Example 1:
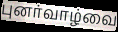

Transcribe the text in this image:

புனர்வாழ்வை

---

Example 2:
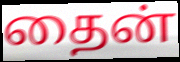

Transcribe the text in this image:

தைன்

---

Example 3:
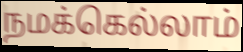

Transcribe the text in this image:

நமக்கெல்லாம்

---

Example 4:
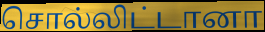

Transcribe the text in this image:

சொல்லிட்டானா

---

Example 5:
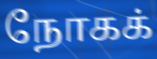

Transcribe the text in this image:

நோகக்